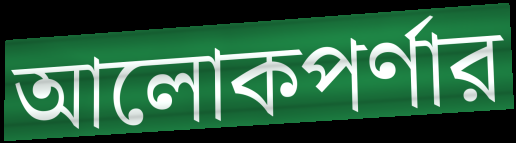
আলোকপর্ণার